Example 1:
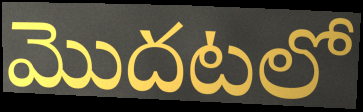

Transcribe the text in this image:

మొదటలో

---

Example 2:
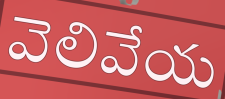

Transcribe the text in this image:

వెలివేయ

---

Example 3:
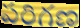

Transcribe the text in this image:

పరిగణ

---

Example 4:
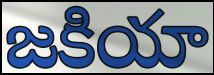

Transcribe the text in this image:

జకియా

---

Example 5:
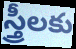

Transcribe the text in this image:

స్త్రీలకు